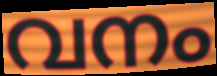
വനം